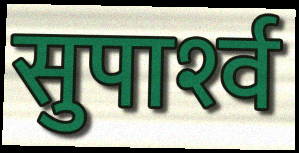
सुपार्श्व